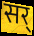
सर्